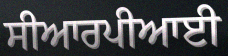
ਸੀਆਰਪੀਆਈ